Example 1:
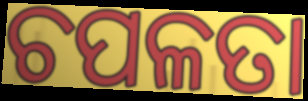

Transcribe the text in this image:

ଚପଳତା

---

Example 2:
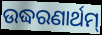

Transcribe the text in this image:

ଉଦ୍ଧରଣାର୍ଥମ୍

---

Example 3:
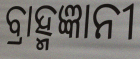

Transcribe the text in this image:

ବ୍ରାହ୍ମଜ୍ଞାନୀ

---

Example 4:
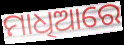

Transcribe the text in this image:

ମାଧିଆରେ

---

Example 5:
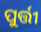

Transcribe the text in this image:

ପୁର୍ତ୍ତୀ